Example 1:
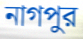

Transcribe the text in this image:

নাগপুর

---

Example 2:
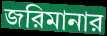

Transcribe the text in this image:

জরিমানার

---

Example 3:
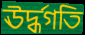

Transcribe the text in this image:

ঊর্দ্ধগতি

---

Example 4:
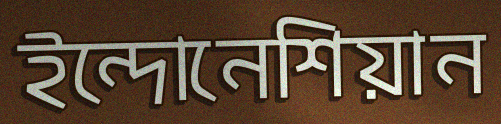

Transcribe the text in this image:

ইন্দোনেশিয়ান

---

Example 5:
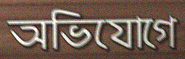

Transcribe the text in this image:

অভিযোগে